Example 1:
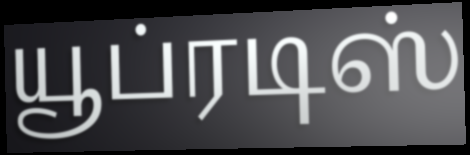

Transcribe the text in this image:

யூப்ரடிஸ்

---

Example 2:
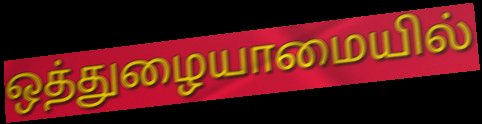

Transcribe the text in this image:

ஒத்துழையாமையில்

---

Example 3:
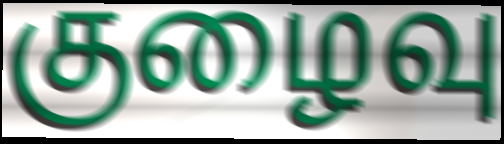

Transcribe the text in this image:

குழைவு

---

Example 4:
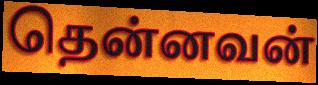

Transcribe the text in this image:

தென்னவன்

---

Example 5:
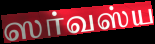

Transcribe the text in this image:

ஸர்வஸ்ய